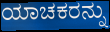
ಯಾಚಕರನ್ನು